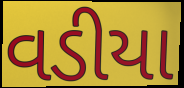
વડીયા